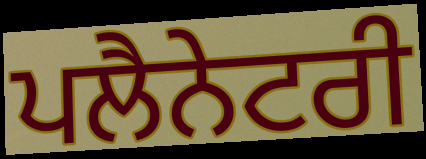
ਪਲੈਨੇਟਰੀ